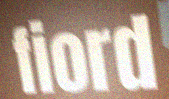
fiord